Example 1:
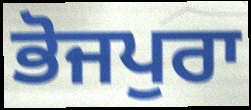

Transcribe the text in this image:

ਭੋਜਪੁਰਾ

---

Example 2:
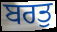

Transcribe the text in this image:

ਬਰਤੁ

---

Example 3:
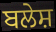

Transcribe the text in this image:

ਬਲੇਸ਼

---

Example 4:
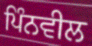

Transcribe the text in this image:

ਪਿੰਨਵੀਲ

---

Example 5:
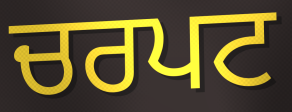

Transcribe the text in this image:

ਚਰਪਟ